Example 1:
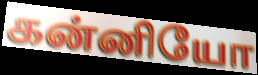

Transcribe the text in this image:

கன்னியோ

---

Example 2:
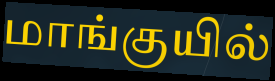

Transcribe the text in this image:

மாங்குயில்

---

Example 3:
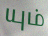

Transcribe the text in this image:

யும்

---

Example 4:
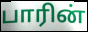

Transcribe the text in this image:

பாரின்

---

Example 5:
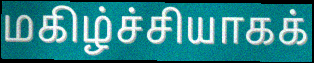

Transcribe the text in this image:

மகிழ்ச்சியாகக்